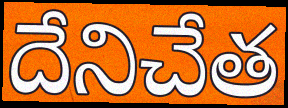
దేనిచేత